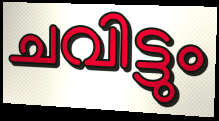
ചവിട്ടും